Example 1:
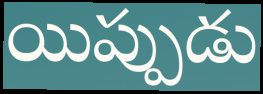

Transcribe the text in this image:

యిప్పుడు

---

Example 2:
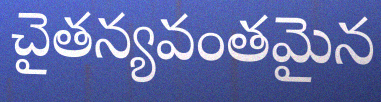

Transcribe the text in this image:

చైతన్యవంతమైన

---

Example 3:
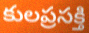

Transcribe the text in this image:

కులప్రసక్తి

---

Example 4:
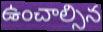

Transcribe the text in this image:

ఉంచాల్సిన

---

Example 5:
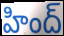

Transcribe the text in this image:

హింద్